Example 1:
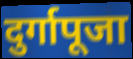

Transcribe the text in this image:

दुर्गापूजा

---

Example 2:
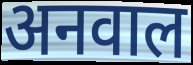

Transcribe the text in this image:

अनवाल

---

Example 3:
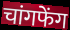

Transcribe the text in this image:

चांगफेंग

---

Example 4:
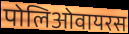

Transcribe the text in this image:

पोलिओवायरस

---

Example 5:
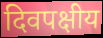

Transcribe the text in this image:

दिवपक्षीय